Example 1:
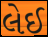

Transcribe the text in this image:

લેઈ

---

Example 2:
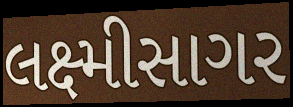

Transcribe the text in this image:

લક્ષ્મીસાગર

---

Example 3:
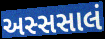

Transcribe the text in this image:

અસ્સસાલં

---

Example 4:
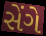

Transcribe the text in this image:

સેંગે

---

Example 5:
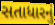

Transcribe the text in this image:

સતાધારનું